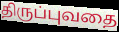
திருப்புவதை